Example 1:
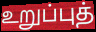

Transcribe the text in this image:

உறுப்புத்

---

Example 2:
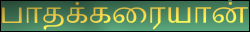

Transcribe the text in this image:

பாதக்கரையான்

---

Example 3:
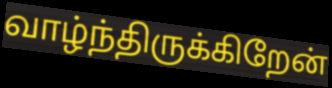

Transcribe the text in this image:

வாழ்ந்திருக்கிறேன்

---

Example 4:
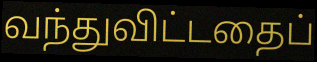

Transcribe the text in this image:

வந்துவிட்டதைப்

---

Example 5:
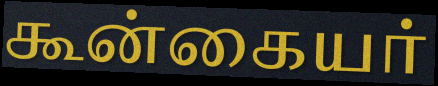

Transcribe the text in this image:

கூன்கையர்